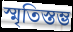
স্মৃতিস্তম্ভ